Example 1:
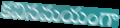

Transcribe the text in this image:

కవిసమయంగా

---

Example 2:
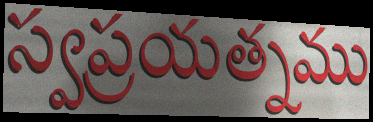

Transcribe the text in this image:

స్వప్రయత్నము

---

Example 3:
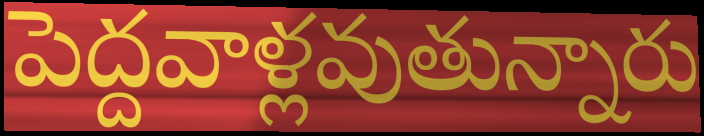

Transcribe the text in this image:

పెద్దవాళ్లవుతున్నారు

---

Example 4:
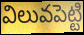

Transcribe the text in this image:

విలువపెట్టి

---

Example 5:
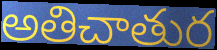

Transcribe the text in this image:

అతిచాతుర